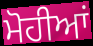
ਮੋਹੀਆਂ